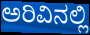
ಅರಿವಿನಲ್ಲಿ